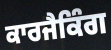
ਕਾਰਜੈਕਿੰਗ